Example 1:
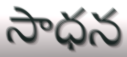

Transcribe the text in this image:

సాధన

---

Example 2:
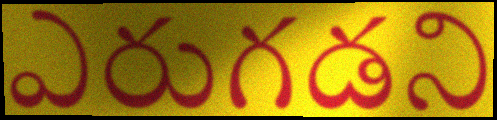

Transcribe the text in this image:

ఎరుగడని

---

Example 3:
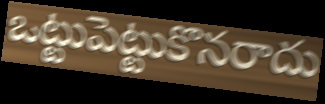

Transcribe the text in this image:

ఒట్టుపెట్టుకొనరాదు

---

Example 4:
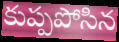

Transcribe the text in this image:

కుప్పపోసిన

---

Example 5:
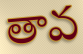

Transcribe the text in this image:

తావ